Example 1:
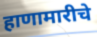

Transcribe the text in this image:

हाणामारीचे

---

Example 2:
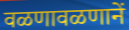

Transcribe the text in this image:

वळणावळणानें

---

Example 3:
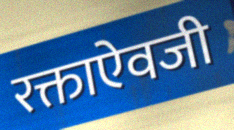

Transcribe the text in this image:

रक्ताऐवजी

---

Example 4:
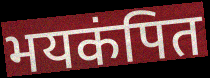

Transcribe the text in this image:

भयकंपित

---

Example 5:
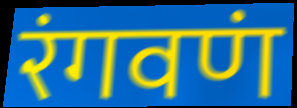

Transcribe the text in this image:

रंगवणं